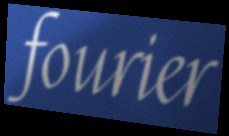
fourier